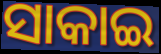
ସାକାଇ